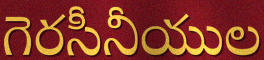
గెరసీనీయుల